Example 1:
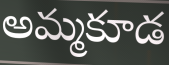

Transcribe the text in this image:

అమ్మకూడ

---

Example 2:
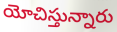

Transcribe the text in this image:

యోచిస్తున్నారు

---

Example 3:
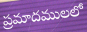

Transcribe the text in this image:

ప్రమాదములలో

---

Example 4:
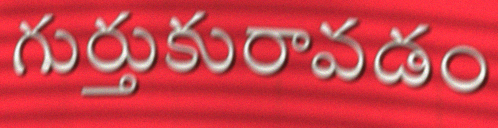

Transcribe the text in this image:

గుర్తుకురావడం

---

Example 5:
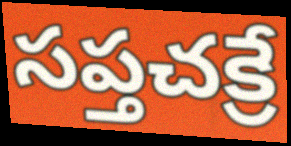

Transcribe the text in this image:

సప్తచక్రే